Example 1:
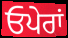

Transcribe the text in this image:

ਓਪੇਰਾਂ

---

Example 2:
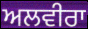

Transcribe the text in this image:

ਅਲਵੀਰਾ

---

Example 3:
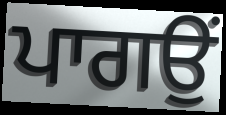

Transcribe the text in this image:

ਪਾਗਉਂ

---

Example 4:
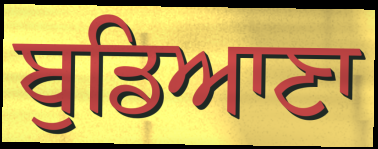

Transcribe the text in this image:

ਬੁਡਿਆਣਾ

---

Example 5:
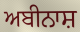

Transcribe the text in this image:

ਅਬੀਨਾਸ਼